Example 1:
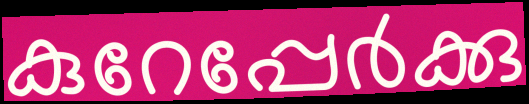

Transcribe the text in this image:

കുറേപ്പേർക്കു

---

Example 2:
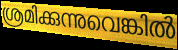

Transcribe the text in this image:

ശ്രമിക്കുന്നുവെങ്കിൽ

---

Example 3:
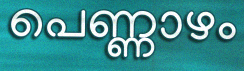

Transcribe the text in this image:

പെണ്ണാഴം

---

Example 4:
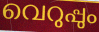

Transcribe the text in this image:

വെറുപ്പും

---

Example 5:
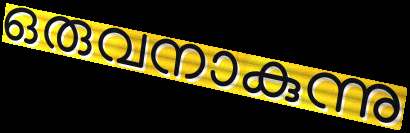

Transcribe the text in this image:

ഒരുവനാകുന്നു